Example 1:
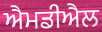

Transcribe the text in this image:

ਐਮਡੀਐਲ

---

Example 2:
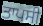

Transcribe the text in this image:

ਤਾਪਸੀ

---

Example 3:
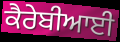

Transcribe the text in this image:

ਕੈਰੇਬੀਆਈ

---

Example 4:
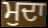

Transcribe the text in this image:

ਮੁਦਾ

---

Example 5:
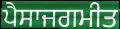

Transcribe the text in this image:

ਪੈਸਾਜਗਮੀਤ